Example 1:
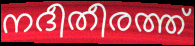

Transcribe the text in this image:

നദീതീരത്ത്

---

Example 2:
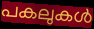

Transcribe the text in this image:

പകലുകൾ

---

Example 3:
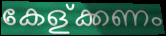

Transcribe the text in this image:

കേള്ക്കണം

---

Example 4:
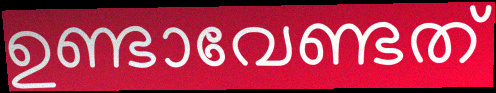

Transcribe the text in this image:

ഉണ്ടാവേണ്ടത്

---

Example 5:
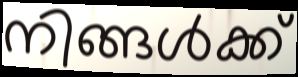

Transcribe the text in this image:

നിങ്ങൾക്ക്